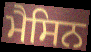
ਮੈਸਿਨ